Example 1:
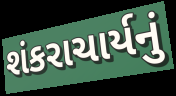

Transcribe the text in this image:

શંકરાચાર્યનું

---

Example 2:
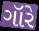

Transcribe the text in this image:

ગૉરે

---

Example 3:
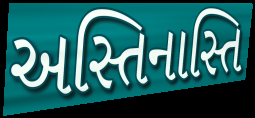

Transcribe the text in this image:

અસ્તિનાસ્તિ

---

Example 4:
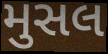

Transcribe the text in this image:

મુસલ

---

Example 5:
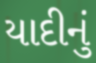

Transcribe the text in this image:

યાદીનું